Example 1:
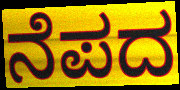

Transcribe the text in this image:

ನೆಪದ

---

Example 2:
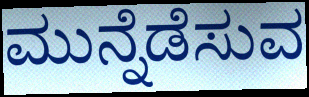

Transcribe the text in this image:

ಮುನ್ನೆಡೆಸುವ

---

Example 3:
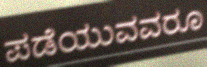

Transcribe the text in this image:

ಪಡೆಯುವವರೂ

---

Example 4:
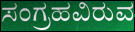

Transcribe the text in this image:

ಸಂಗ್ರಹವಿರುವ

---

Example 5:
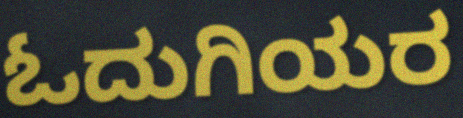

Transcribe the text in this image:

ಓದುಗಿಯರ